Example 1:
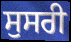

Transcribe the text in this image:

ਸੁਸਰੀ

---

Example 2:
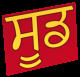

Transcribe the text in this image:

ਸੂਡ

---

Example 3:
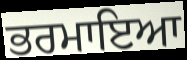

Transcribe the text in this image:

ਭਰਮਾਇਆ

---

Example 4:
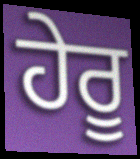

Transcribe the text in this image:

ਹੇਰੂ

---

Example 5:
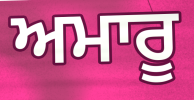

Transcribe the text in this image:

ਅਮਾਰੂ